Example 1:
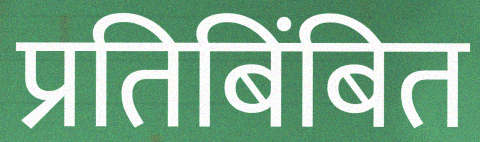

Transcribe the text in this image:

प्रतिबिंबित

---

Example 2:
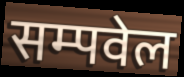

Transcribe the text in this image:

सम्पवेल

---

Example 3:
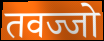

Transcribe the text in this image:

तवज्जो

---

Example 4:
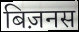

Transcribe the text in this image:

बिज़नस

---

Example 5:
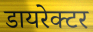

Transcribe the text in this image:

डायरेक्टर